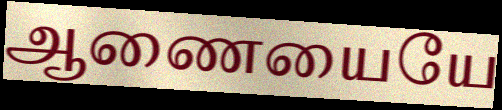
ஆணையையே